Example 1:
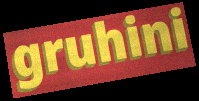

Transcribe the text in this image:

gruhini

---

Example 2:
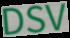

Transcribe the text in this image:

DSV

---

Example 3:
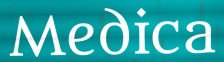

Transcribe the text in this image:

Medica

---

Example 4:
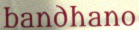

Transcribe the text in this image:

bandhano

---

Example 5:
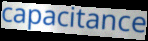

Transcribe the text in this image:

capacitance